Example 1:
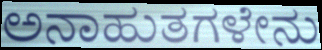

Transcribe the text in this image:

ಅನಾಹುತಗಳೇನು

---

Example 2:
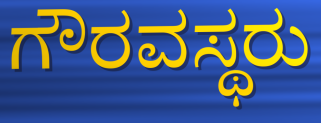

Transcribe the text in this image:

ಗೌರವಸ್ಥರು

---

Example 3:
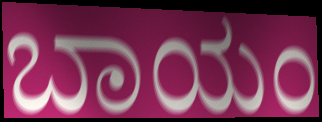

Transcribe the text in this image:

ಬಾಯಂ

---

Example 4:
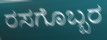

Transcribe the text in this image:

ರಸಗೊಬ್ಬರ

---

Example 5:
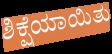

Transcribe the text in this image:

ಶಿಕ್ಷೆಯಾಯಿತು